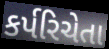
કર્પરિચેતા